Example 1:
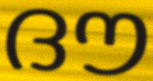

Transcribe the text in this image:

ദൗ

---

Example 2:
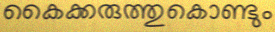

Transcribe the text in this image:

കൈക്കരുത്തുകൊണ്ടും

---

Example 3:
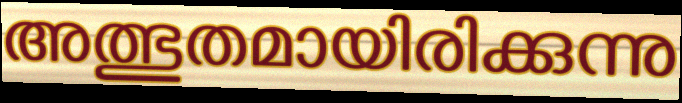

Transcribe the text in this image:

അത്ഭുതമായിരിക്കുന്നു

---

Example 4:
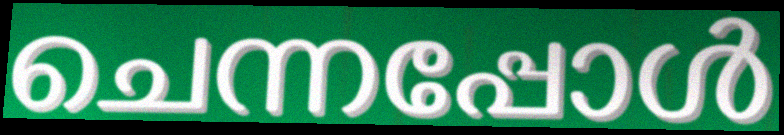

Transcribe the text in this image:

ചെന്നപ്പോൾ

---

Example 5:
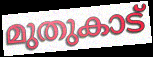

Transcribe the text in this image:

മുതുകാട്